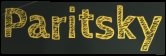
Paritsky